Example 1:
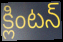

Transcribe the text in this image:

క్లింటన్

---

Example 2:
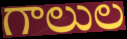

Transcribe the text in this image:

గాలుల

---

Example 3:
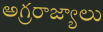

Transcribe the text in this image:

అగ్రరాజ్యాలు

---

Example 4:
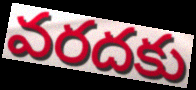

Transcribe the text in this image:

వరదకు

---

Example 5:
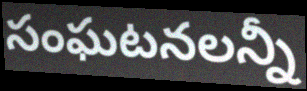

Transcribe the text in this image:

సంఘటనలన్నీ